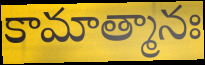
కామాత్మానః